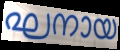
ഘനായ